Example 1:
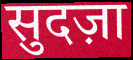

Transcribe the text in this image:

सुदज़ा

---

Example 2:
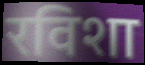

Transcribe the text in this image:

रविशा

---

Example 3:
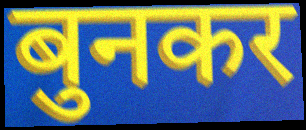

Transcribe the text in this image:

बुनकर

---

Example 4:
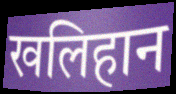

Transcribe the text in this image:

खलिहान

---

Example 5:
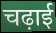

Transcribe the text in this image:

चढ़ाई